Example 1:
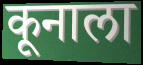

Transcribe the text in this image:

कूनाला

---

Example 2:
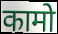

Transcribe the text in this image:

कामो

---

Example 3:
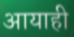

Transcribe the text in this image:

आयाही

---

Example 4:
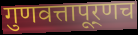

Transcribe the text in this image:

गुणवत्तापूर्णच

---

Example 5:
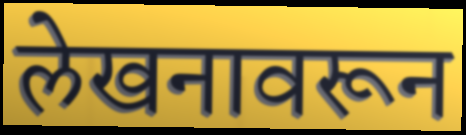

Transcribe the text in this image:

लेखनावरून